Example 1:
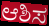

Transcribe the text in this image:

ಆಶಿಸ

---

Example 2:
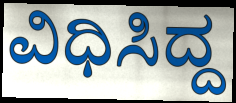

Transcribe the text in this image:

ವಿಧಿಸಿದ್ದ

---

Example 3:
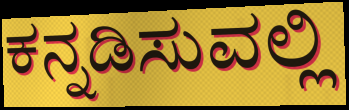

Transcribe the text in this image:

ಕನ್ನಡಿಸುವಲ್ಲಿ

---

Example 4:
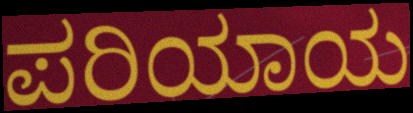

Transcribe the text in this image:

ಪರಿಯಾಯ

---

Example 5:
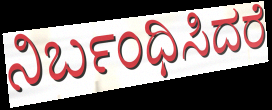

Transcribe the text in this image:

ನಿರ್ಬಂಧಿಸಿದರೆ